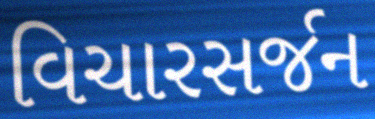
વિચારસર્જન